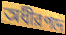
অধীরপদে